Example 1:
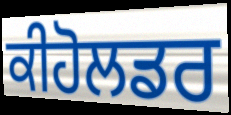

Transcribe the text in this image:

ਕੀਹੋਲਡਰ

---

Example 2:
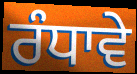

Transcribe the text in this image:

ਰੰਧਾਵੇ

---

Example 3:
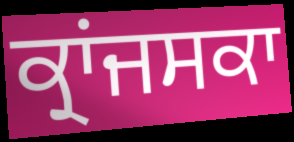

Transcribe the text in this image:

ਕ੍ਰਾਂਜਸਕਾ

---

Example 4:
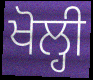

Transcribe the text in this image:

ਖੋਲ੍ਹੀ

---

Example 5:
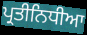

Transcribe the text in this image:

ਪ੍ਰਤੀਨਿਧੀਆ